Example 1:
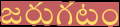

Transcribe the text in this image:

జరుగటం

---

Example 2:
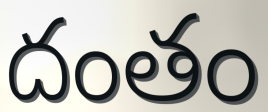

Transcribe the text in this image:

దంతం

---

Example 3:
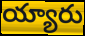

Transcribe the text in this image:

య్యారు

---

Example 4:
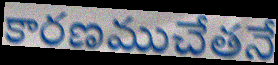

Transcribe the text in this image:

కారణముచేతనే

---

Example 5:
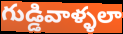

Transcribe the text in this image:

గుడ్డివాళ్ళలా